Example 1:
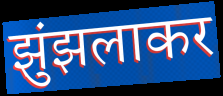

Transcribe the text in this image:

झुंझलाकर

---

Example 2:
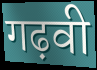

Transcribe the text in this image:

गढ़वी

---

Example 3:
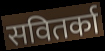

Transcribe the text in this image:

सवितर्का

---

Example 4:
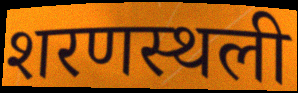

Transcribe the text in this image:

शरणस्थली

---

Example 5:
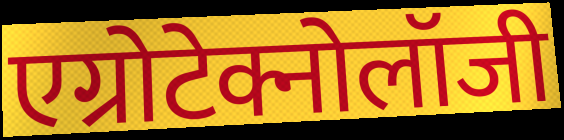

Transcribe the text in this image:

एग्रोटेक्नोलॉजी